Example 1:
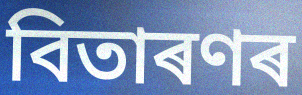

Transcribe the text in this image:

বিতাৰণৰ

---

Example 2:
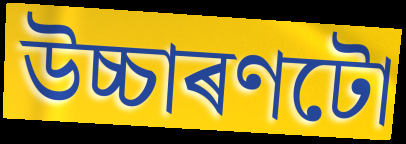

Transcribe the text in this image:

উচ্চাৰণটো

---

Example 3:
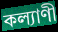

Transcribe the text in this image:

কল্যাণী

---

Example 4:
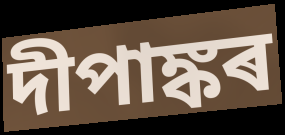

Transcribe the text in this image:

দীপাঙ্কৰ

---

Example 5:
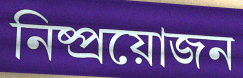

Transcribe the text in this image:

নিষ্প্ৰয়োজন